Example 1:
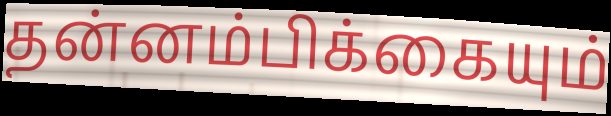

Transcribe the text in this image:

தன்னம்பிக்கையும்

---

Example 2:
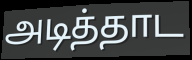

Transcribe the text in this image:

அடித்தாட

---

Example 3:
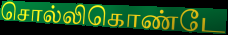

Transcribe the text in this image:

சொல்லிகொண்டே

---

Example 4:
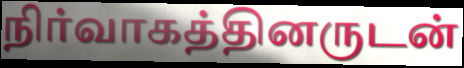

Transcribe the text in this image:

நிர்வாகத்தினருடன்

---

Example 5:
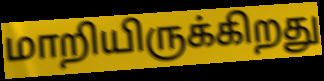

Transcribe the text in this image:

மாறியிருக்கிறது